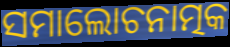
ସମାଲୋଚନାତ୍ମକ